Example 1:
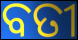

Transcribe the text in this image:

ବତୀ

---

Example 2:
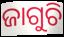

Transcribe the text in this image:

ଜାଗୁଚି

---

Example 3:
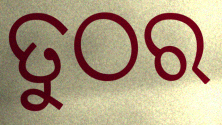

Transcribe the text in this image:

ତୁଠର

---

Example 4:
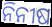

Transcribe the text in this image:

ନିନୀଷ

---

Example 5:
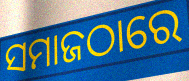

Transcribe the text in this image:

ସମାଜଠାରେ